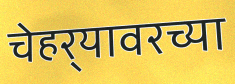
चेहर्‍यावरच्या